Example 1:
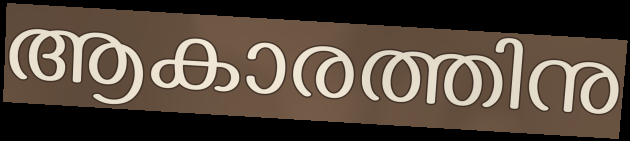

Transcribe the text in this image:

ആകാരത്തിനു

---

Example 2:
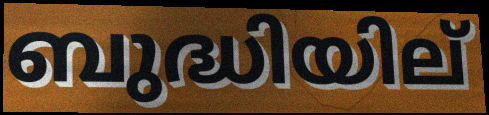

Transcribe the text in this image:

ബുദ്ധിയില്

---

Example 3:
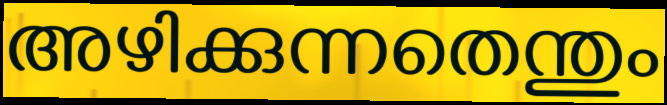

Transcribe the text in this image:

അഴിക്കുന്നതെന്തും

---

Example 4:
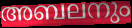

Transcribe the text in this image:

അബലനും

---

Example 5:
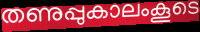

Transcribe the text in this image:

തണുപ്പുകാലംകൂടെ